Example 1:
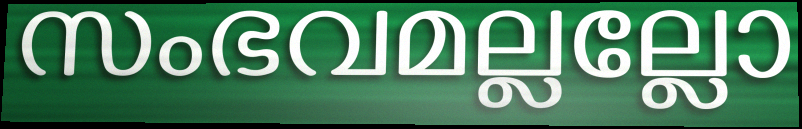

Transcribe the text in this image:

സംഭവമല്ലല്ലോ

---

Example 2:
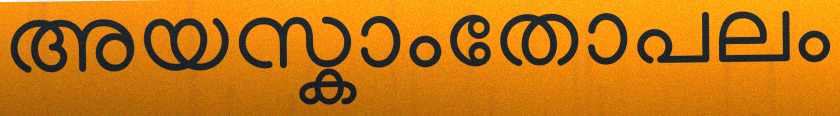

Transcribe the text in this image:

അയസ്കാംതോപലം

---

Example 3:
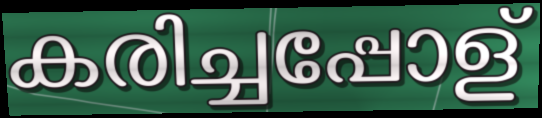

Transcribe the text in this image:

കരിച്ചപ്പോള്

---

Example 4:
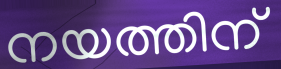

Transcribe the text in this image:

നയത്തിന്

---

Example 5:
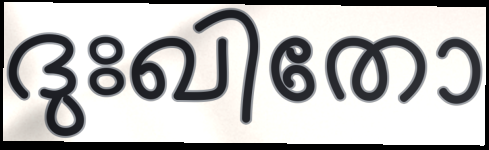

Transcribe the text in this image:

ദുഃഖിതോ